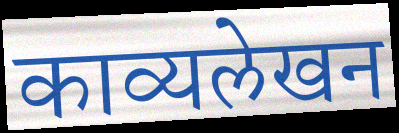
काव्यलेखन